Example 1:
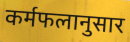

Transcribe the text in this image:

कर्मफलानुसार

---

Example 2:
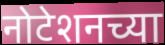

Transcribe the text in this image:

नोटेशनच्या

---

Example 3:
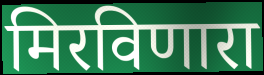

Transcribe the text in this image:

मिरविणारा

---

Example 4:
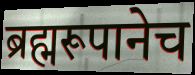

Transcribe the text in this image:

ब्रह्मरूपानेच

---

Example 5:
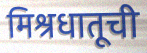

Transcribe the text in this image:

मिश्रधातूची